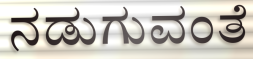
ನಡುಗುವಂತೆ